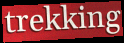
trekking